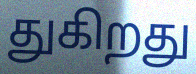
துகிறது